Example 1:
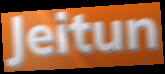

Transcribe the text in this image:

Jeitun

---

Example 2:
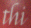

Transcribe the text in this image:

thi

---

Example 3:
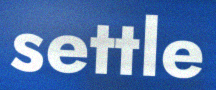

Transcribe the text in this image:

settle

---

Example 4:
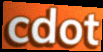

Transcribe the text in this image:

cdot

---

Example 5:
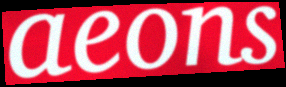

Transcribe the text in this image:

aeons